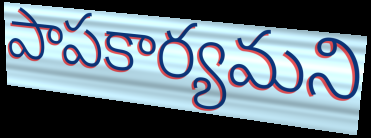
పాపకార్యమని